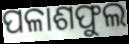
ପଳାଶଫୁଲ